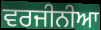
ਵਰਜੀਨੀਆ